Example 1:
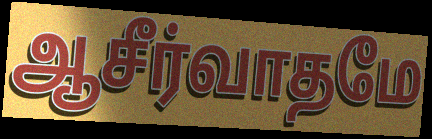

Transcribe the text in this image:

ஆசீர்வாதமே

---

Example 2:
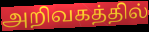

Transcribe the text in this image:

அறிவகத்தில்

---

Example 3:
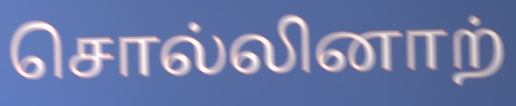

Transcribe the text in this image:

சொல்லினாற்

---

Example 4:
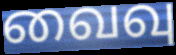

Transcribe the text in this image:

வைவு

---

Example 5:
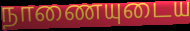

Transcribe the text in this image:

நாணையுடைய